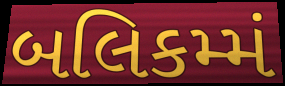
બલિકમ્મં